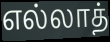
எல்லாத்